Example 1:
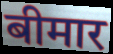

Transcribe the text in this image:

बीमार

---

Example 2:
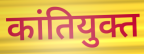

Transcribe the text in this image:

कांतियुक्त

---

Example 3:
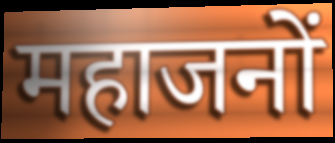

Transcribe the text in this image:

महाजनों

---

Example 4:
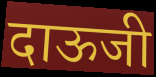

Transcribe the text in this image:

दाऊजी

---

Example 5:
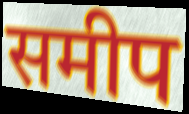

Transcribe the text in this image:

समीप